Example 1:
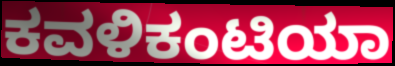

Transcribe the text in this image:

ಕವಳಿಕಂಟಿಯಾ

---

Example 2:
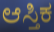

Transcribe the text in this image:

ಆಸ್ತಿಕ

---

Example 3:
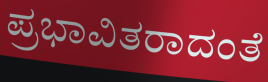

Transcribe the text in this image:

ಪ್ರಭಾವಿತರಾದಂತೆ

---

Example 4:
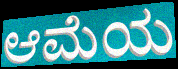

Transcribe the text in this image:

ಆಮೆಯ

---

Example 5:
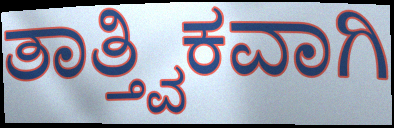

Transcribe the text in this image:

ತಾತ್ತ್ವಿಕವಾಗಿ